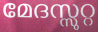
മേദസ്സുറ്റ